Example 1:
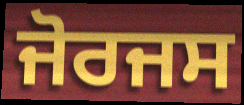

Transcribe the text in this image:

ਜੋਰਜਸ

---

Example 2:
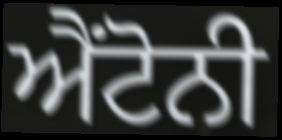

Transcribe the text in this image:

ਐਂਟੋਨੀ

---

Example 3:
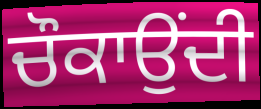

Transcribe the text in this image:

ਚੌਕਾਉਂਦੀ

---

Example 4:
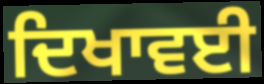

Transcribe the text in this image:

ਦਿਖਾਵਈ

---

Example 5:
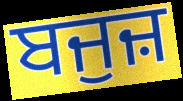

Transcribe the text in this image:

ਬਜੁਜ਼